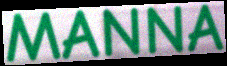
MANNA